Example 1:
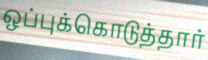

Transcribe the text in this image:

ஒப்புக்கொடுத்தார்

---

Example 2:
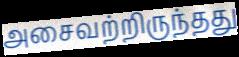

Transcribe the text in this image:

அசைவற்றிருந்தது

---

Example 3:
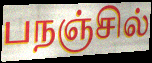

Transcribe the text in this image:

பநஞ்சில்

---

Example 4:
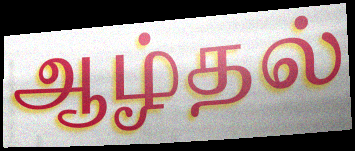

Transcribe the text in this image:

ஆழ்தல்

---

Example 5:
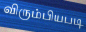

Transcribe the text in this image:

விரும்பியபடி